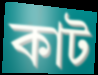
কাট